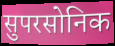
सुपरसोनिक